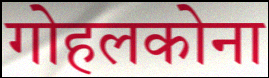
गोहलकोना